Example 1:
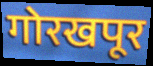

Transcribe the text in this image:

गोरखपूर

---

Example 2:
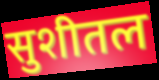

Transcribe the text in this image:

सुशीतल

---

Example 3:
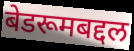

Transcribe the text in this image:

बेडरूमबद्दल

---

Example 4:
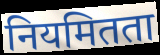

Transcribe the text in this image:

नियमितता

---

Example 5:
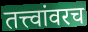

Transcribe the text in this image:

तत्त्वांवरच